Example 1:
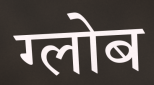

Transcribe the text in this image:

ग्‍लोब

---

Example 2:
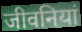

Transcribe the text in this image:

जीवनियां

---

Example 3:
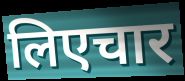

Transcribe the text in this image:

लिएचार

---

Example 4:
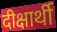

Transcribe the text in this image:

दीक्षार्थी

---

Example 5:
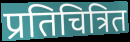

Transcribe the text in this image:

प्रतिचित्रित